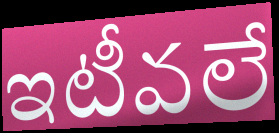
ఇటీవలే